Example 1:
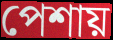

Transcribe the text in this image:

পেশায়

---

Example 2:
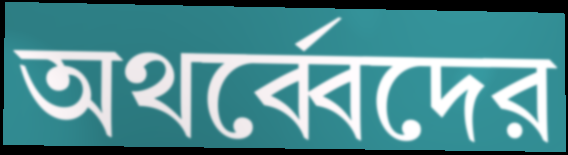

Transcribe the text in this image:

অথর্ব্বেদের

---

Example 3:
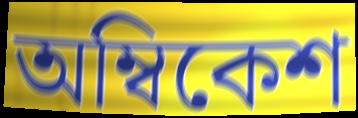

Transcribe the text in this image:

অম্বিকেশ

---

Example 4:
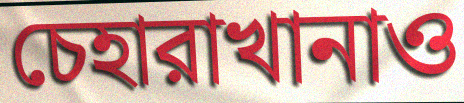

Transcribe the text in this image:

চেহারাখানাও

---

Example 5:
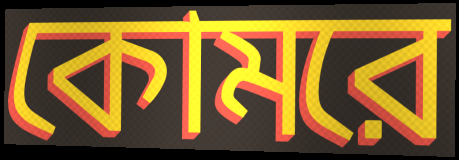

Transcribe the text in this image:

কোমরে